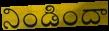
నిండిందా